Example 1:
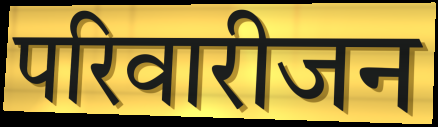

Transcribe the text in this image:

परिवारीजन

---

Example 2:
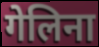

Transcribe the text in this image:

गेलिना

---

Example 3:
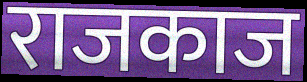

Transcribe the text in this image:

राजकाज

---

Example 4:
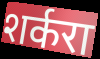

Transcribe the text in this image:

शर्करा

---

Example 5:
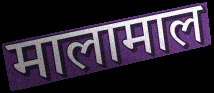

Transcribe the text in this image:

मालामाल